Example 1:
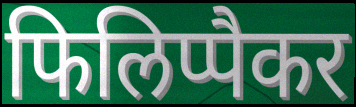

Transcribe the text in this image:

फिलिप्पैकर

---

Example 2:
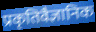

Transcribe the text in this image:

प्रकृतिवैज्ञानिक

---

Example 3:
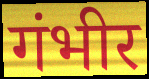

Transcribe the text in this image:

गंभीर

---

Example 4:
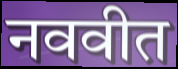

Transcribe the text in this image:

नववीत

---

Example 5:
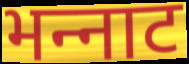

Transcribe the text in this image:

भन्नाट